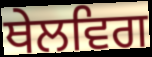
ਥੇਲਵਿਗ